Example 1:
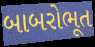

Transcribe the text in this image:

બાબરોભૂત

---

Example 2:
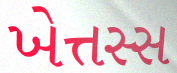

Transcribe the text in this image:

ખેત્તસ્સ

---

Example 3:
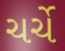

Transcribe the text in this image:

ચર્ચે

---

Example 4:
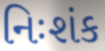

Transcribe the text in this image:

નિઃશંક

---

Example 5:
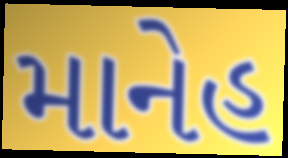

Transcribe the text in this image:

માનેહ